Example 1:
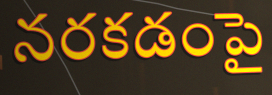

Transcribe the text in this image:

నరకడంపై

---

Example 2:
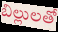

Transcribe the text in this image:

బిల్లులతో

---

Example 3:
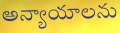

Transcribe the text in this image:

అన్యాయాలను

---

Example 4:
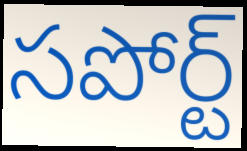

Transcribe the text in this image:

సపోర్ట్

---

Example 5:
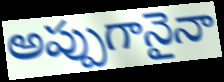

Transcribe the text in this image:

అప్పుగానైనా